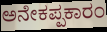
ಅನೇಕಪ್ಪಕಾರಂ